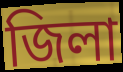
জিলা